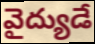
వైద్యుడే